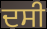
ਦਸੀ